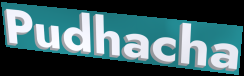
Pudhacha